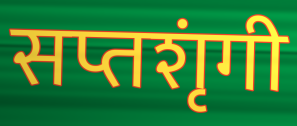
सप्तशृंगी